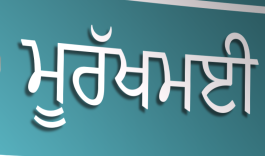
ਮੂਰੱਖਮਈ